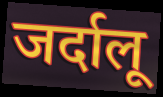
जर्दालू